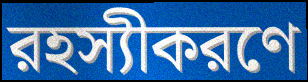
রহস্যীকরণে